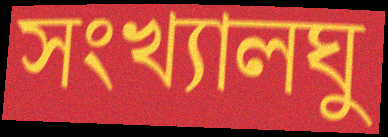
সংখ্যালঘু